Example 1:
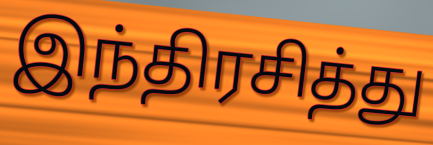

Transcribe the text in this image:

இந்திரசித்து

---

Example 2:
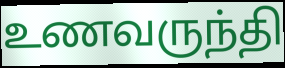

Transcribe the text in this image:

உணவருந்தி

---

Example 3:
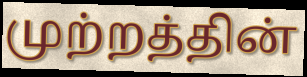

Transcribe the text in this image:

முற்றத்தின்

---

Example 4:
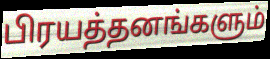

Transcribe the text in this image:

பிரயத்தனங்களும்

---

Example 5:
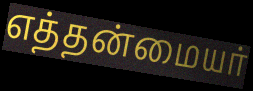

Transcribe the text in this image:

எத்தன்மையர்